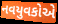
નવયુવકોએ